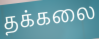
தக்கலை